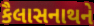
કૈલાસનાથને